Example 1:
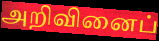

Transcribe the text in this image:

அறிவினைப்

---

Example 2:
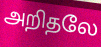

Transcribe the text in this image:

அறிதலே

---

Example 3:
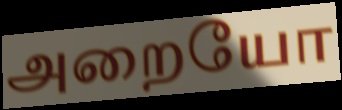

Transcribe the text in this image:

அறையோ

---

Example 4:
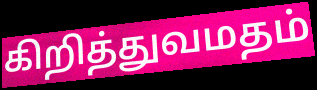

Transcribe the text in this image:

கிறித்துவமதம்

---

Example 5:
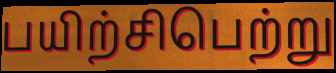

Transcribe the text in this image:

பயிற்சிபெற்று